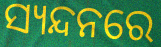
ସ୍ୟନ୍ଦନରେ